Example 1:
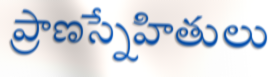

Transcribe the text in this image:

ప్రాణస్నేహితులు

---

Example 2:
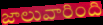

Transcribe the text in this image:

జాలువారింది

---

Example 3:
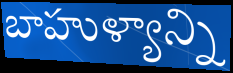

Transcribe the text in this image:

బాహుళ్యాన్ని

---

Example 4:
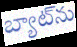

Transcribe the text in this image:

బ్యాట్‌ను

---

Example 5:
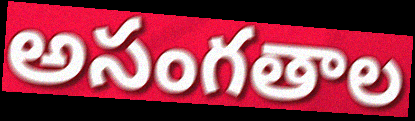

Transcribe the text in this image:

అసంగతాల